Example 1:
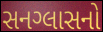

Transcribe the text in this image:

સનગ્લાસનો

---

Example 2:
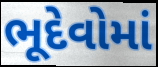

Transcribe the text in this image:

ભૂદેવોમાં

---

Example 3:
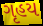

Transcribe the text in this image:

ગૃહય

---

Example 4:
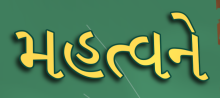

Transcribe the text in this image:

મહત્વને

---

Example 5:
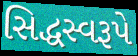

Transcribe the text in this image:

સિદ્ધસ્વરૂપે